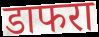
डाफरा